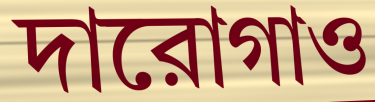
দারোগাও